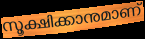
സൂക്ഷിക്കാനുമാണ്